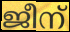
ജീന്